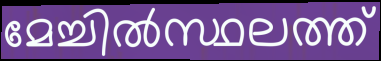
മേച്ചിൽസ്ഥലത്ത്